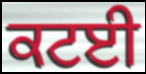
ਕਟਈ